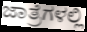
ಜಾತ್ರೆಗಳಲ್ಲಿ